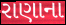
રાણાના